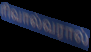
ரிவால்வரால்